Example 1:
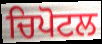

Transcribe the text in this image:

ਚਿਪੋਟਲ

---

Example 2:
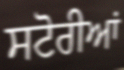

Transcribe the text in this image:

ਸਟੋਰੀਆਂ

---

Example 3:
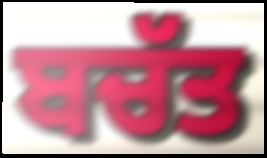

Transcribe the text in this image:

ਬਚੱਤ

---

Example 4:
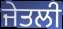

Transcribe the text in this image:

ਜੇਤਲੀ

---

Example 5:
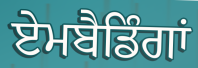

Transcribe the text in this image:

ਏਮਬੈਡਿੰਗਾਂ